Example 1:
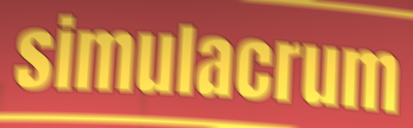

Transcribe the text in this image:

simulacrum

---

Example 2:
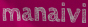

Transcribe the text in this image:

manaivi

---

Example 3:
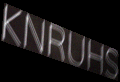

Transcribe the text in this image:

KNRUHS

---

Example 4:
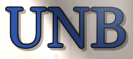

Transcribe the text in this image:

UNB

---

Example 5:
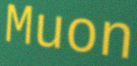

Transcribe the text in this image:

Muon